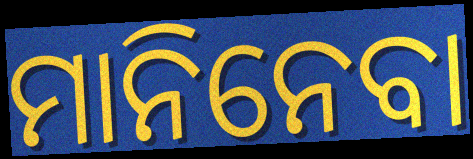
ମାନିନେବା